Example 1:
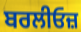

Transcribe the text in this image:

ਬਰਲੀਓਜ਼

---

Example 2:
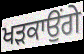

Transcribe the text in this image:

ਖੜਕਾਉਂਗੇ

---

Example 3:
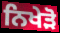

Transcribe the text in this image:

ਨਿਖੇੜੋ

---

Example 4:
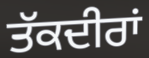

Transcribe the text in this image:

ਤੱਕਦੀਰਾਂ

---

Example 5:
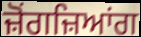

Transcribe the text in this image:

ਜ਼ੋਂਗਜ਼ਿਆਂਗ